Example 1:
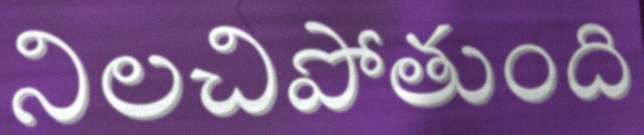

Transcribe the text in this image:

నిలచిపోతుంది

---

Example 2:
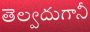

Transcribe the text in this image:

తెల్వదుగానీ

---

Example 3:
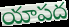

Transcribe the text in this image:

యాపద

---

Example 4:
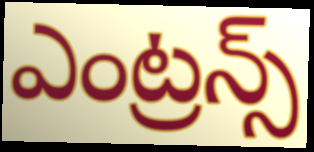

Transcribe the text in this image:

ఎంట్రన్స్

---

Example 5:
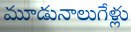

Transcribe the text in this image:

మూడునాలుగేళ్లు